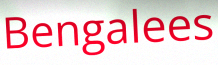
Bengalees